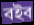
বইব